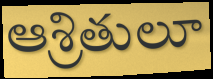
ఆశ్రితులూ